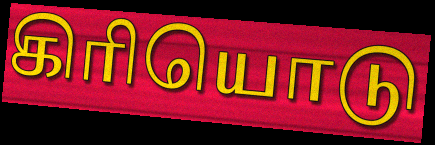
கிரியொடு